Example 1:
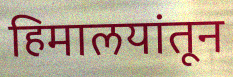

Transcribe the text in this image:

हिमालयांतून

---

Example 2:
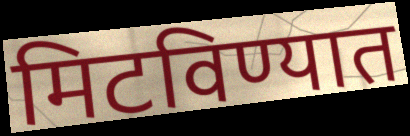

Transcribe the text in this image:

मिटविण्यात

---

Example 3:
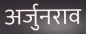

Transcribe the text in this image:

अर्जुनराव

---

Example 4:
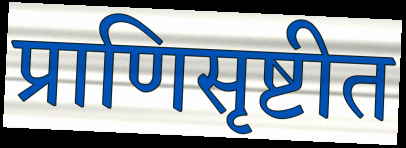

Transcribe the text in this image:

प्राणिसृष्टीत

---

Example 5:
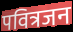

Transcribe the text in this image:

पवित्रजन